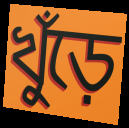
খুঁড়ে